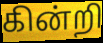
கின்றி